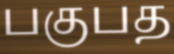
பகுபத